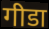
गीडा